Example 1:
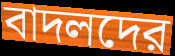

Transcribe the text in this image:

বাদলদের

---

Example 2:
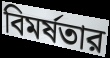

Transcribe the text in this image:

বিমর্ষতার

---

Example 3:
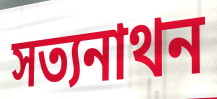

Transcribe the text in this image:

সত্যনাথন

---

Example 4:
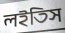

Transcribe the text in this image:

লইতিস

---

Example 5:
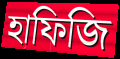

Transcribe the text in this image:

হাফিজি